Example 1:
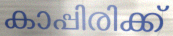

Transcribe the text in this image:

കാപ്പിരിക്ക്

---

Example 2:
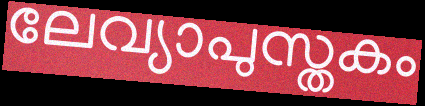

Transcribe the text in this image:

ലേവ്യാപുസ്തകം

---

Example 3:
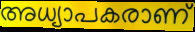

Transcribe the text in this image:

അധ്യാപകരാണ്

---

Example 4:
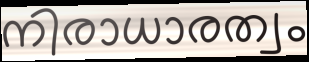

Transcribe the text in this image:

നിരാധാരത്വം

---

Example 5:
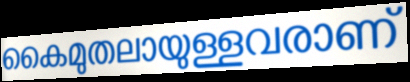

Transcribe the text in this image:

കൈമുതലായുള്ളവരാണ്